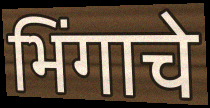
भिंगाचे